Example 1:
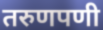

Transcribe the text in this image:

तरुणपणी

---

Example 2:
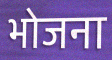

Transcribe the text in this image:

भोजना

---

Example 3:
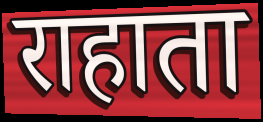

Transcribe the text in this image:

राहाता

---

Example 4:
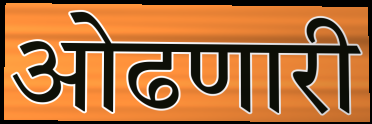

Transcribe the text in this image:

ओढणारी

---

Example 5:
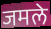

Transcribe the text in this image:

जमले